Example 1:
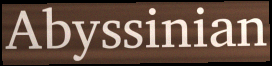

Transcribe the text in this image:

Abyssinian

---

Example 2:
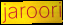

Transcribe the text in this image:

jaroori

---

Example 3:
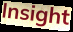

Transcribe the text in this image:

Insight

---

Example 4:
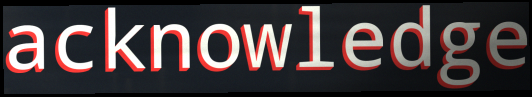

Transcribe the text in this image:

acknowledge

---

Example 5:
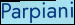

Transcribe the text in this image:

Parpiani